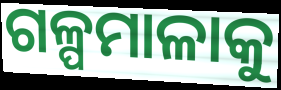
ଗଳ୍ପମାଳାକୁ